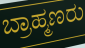
ಬ್ರಾಹ್ಮಣರು